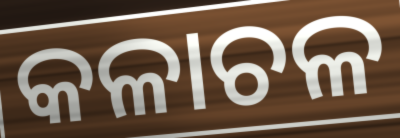
କଳାଚଳ